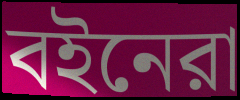
বইনেরা